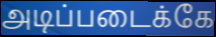
அடிப்படைக்கே